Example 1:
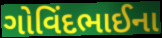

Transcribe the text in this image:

ગોવિંદભાઈના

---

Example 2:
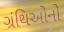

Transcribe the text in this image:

ગ્રંથિઓનો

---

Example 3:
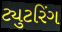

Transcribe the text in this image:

ટ્યુટરિંગ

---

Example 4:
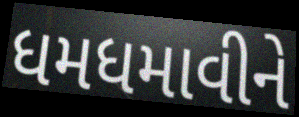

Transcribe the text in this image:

ધમધમાવીને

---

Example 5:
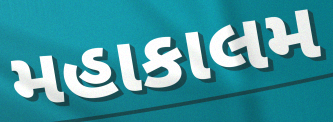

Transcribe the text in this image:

મહાકાલમ